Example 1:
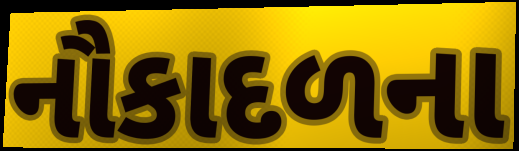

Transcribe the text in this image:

નૌકાદળના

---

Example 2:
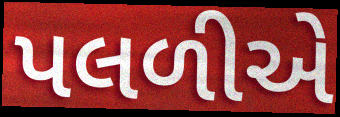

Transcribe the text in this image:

પલળીએ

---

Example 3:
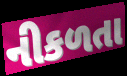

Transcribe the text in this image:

નીકળતા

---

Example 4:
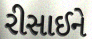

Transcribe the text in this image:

રીસાઈને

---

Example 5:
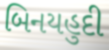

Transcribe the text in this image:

બિનયહુદી